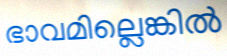
ഭാവമില്ലെങ്കിൽ